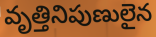
వృత్తినిపుణులైన